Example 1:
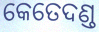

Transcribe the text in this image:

କେତେଦଣ୍ଡ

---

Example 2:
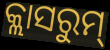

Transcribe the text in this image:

କ୍ଲାସରୁମ୍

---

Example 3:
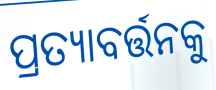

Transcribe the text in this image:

ପ୍ରତ୍ୟାବର୍ତ୍ତନକୁ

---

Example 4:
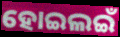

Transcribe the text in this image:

ହୋଇଲଇଁ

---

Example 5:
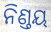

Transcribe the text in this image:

ନିଣ୍ଡୟ